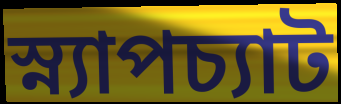
স্ন্যাপচ্যাট